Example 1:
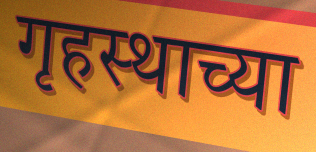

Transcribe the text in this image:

गृहस्थाच्या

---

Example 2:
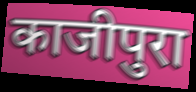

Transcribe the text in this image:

काजीपुरा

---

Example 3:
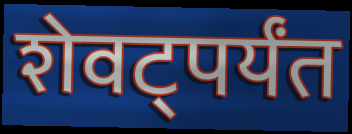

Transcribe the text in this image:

शेवट्पर्यंत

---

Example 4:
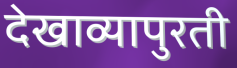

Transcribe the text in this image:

देखाव्यापुरती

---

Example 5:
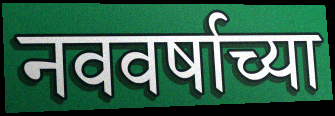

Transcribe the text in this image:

नववर्षाच्या